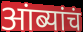
आंब्यांचं